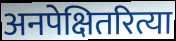
अनपेक्षितरित्या